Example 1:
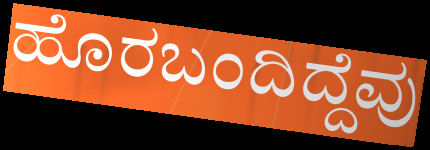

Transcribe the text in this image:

ಹೊರಬಂದಿದ್ದೆವು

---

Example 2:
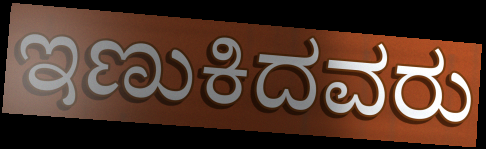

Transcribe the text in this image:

ಇಣುಕಿದವರು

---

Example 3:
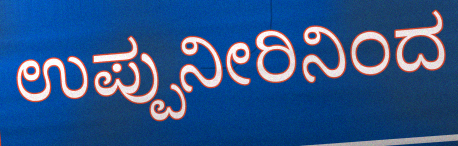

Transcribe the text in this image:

ಉಪ್ಪುನೀರಿನಿಂದ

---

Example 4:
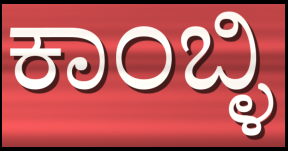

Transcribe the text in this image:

ಕಾಂಬ್ಳಿ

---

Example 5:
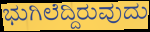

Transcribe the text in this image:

ಭುಗಿಲೆದ್ದಿರುವುದು